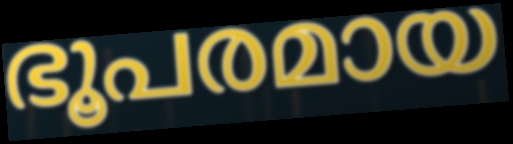
ഭൂപരമായ